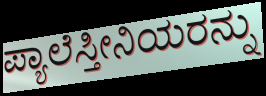
ಪ್ಯಾಲೆಸ್ತೀನಿಯರನ್ನು